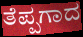
ತೆಪ್ಪಗಾದ